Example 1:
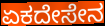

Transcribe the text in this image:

ಏಕದೇಸೇನ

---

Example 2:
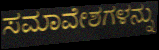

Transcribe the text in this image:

ಸಮಾವೇಶಗಳನ್ನು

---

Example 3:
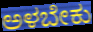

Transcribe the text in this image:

ಅಳಬೇಕು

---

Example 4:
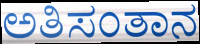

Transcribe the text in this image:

ಅತಿಸಂತಾನ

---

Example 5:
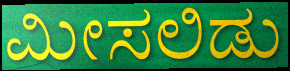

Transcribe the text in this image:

ಮೀಸಲಿಡು